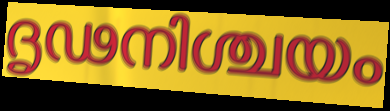
ദൃഢനിശ്ചയം